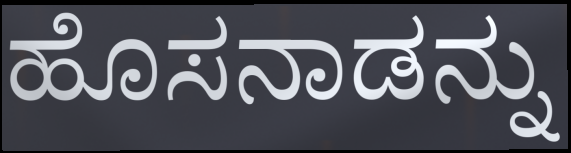
ಹೊಸನಾಡನ್ನು